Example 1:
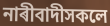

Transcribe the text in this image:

নাৰীবাদীসকলে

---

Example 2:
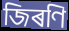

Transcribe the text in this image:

জিৰণি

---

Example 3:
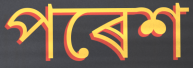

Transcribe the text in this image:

পৰেশ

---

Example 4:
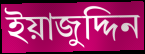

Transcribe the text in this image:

ইয়াজুদ্দিন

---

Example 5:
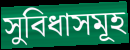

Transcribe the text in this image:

সুবিধাসমূহ